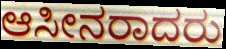
ಆಸೀನರಾದರು